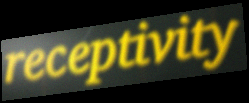
receptivity